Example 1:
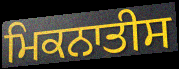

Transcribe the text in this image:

ਮਿਕਨਾਤੀਸ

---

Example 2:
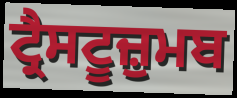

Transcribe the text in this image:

ਟ੍ਰੈਸਟੂਜ਼ੁਮਬ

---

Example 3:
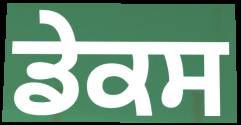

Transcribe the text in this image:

ਡੇਕਸ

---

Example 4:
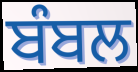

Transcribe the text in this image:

ਬੰਬਲ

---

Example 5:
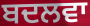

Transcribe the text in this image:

ਬਦਲਵਾ